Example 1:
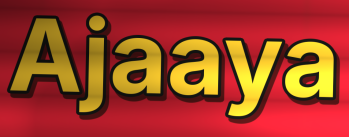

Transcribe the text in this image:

Ajaaya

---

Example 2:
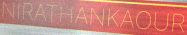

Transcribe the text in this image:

NIRATHANKAOUR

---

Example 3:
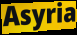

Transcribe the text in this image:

Asyria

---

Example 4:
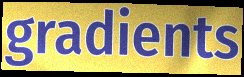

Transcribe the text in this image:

gradients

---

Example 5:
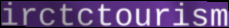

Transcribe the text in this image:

irctctourism